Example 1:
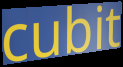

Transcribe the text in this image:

cubit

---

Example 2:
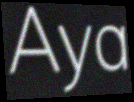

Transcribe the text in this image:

Aya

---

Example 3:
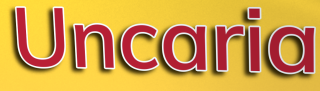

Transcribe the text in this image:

Uncaria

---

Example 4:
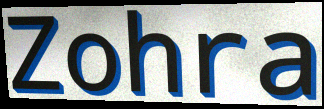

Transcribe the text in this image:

Zohra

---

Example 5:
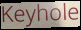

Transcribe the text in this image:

Keyhole